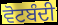
ਵੋਟਬੰਦੀ